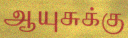
ஆயுசுக்கு